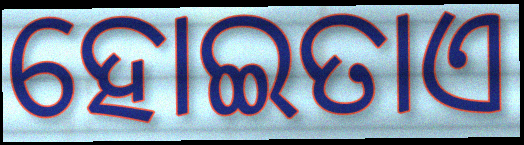
ହୋଇତାଏ